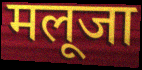
मलूजा